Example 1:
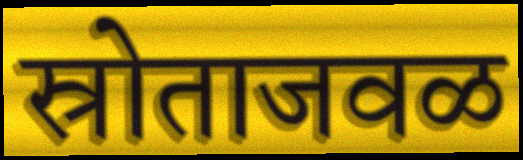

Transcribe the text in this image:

स्रोताजवळ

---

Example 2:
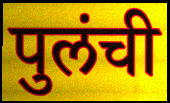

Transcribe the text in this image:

पुलंची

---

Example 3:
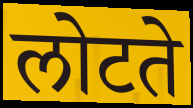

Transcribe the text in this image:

लोटते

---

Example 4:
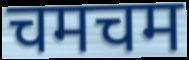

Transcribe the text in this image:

चमचम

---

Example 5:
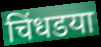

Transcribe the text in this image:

चिंधडया